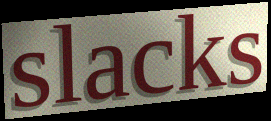
slacks